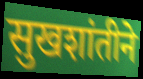
सुखशांतीने